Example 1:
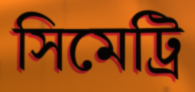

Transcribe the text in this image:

সিমেট্রি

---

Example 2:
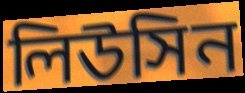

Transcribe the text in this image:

লিউসিন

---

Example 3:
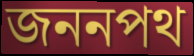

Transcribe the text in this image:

জননপথ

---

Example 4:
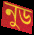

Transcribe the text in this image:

নুড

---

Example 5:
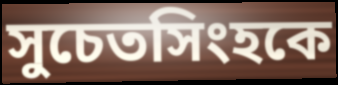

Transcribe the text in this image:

সুচেতসিংহকে